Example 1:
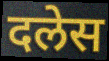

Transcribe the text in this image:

दलेस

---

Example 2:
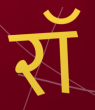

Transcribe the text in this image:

रॉ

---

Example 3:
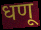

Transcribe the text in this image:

धणू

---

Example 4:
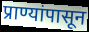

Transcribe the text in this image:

प्राण्यांपासून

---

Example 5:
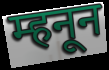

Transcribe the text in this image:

म्हनून